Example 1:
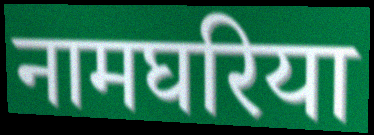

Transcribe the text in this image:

नामघरिया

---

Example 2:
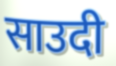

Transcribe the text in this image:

साउदी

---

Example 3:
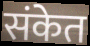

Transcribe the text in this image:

संकेत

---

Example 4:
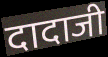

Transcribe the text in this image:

दादाजी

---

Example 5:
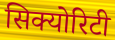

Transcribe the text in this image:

सिक्योरिटी